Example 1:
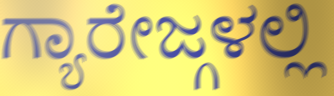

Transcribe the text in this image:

ಗ್ಯಾರೇಜ್ಗಳಲ್ಲಿ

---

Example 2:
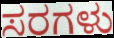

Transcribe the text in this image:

ಸರಗಳು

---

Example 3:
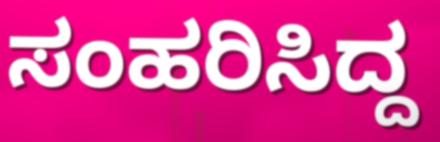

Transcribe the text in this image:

ಸಂಹರಿಸಿದ್ದ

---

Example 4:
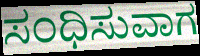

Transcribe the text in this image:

ಸಂಧಿಸುವಾಗ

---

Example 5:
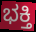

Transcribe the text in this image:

ಭಕ್ತಿ